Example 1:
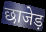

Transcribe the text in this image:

छाजेड़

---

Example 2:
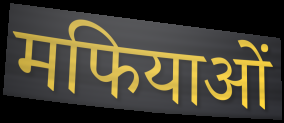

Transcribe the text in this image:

मफियाओं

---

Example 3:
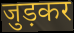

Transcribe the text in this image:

जुड़कर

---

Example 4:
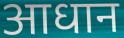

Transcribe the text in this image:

आधान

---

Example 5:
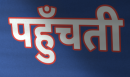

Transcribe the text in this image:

पहुँचती